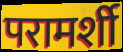
परामर्शी